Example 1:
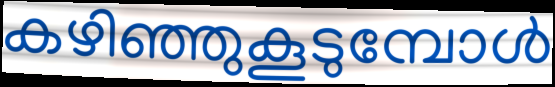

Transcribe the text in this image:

കഴിഞ്ഞുകൂടുമ്പോൾ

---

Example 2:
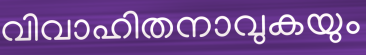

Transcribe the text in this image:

വിവാഹിതനാവുകയും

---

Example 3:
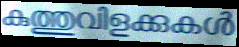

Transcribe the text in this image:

കുത്തുവിളക്കുകൾ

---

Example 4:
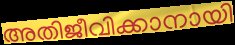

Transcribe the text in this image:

അതിജീവിക്കാനായി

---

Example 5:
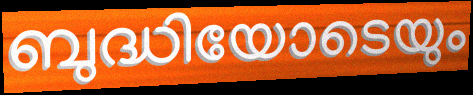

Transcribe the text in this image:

ബുദ്ധിയോടെയും